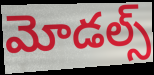
మోడల్స్